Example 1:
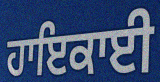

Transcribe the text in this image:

ਹਾਇਕਾਈ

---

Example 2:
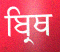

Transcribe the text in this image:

ਬ੍ਰਿਥ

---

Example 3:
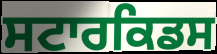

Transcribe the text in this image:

ਸਟਾਰਕਿਡਸ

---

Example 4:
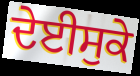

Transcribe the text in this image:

ਦੇਈਸੁਕੇ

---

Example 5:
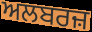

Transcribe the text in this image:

ਅਲਬਰਜ਼